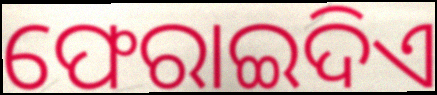
ଫେରାଇଦିଏ